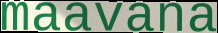
maavana